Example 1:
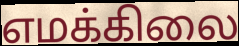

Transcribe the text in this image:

எமக்கிலை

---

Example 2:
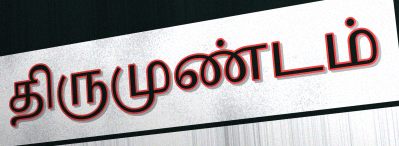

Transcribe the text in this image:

திருமுண்டம்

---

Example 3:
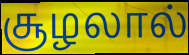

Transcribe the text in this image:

சூழலால்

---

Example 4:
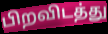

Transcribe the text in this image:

பிறவிடத்து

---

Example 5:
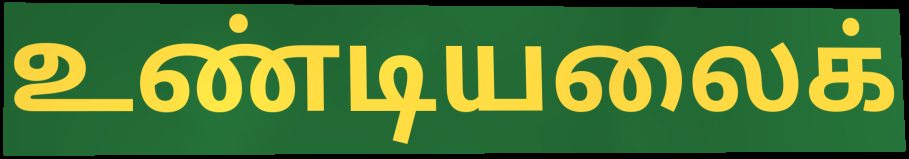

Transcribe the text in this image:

உண்டியலைக்